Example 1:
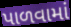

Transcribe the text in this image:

પાળવામાં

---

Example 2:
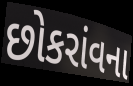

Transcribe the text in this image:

છોકરાંવના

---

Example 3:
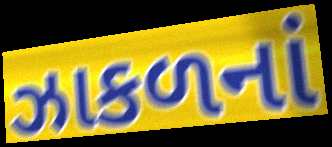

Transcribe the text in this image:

ઝાકળનાં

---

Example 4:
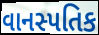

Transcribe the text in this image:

વાનસ્પતિક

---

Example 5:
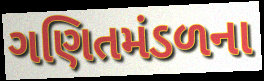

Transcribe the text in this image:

ગણિતમંડળના